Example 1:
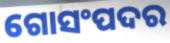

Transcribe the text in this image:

ଗୋସଂପଦର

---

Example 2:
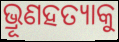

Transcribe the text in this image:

ଭ୍ରୂଣହତ୍ୟାକୁ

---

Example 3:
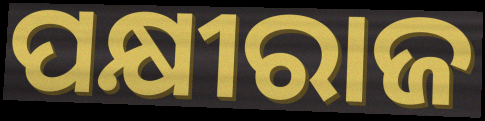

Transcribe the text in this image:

ପକ୍ଷୀରାଜ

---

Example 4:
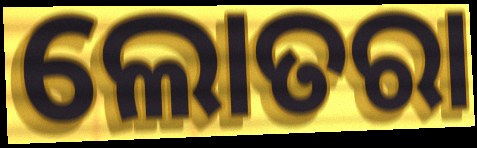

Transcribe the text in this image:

ଲୋତରା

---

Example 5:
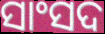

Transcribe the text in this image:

ସାଂସଦ